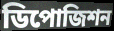
ডিপোজিশন